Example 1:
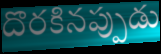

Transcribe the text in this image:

దొరకినప్పుడు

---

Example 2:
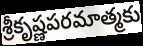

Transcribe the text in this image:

శ్రీకృష్ణపరమాత్మకు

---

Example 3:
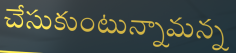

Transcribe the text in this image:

చేసుకుంటున్నామన్న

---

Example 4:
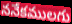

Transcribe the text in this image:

ననేకములగు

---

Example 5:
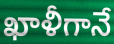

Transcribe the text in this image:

ఖాళీగానే